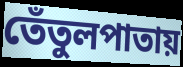
তেঁতুলপাতায়